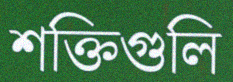
শক্তিগুলি